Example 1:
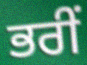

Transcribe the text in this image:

ਭਰੀਂ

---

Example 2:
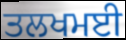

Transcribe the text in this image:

ਤਲਖਮਈ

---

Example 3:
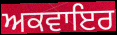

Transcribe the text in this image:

ਅਕਵਾਇਰ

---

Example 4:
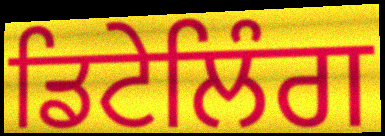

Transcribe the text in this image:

ਡਿਟੇਲਿੰਗ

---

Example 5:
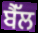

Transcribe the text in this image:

ਬੈੱਲ